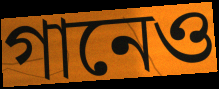
গানেও